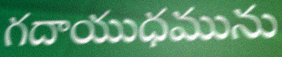
గదాయుధమును